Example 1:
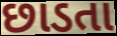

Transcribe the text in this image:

છાડતા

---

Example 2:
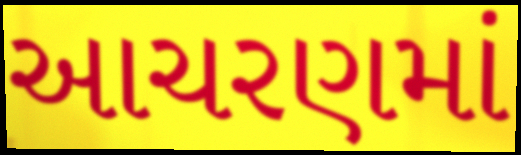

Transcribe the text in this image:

આચરણમાં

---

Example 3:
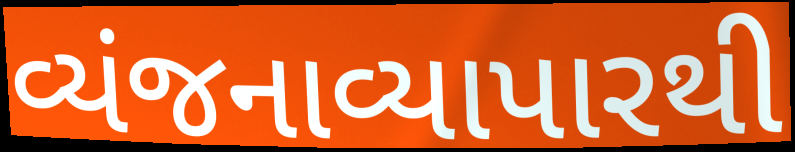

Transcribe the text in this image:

વ્યંજનાવ્યાપારથી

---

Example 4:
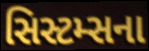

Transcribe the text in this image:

સિસ્ટમ્સના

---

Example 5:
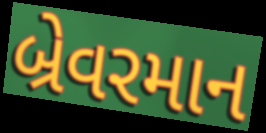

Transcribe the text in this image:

બ્રેવરમાન